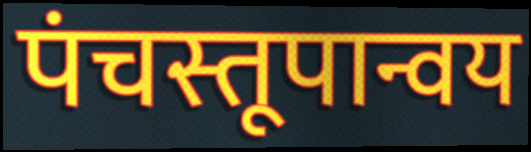
पंचस्तूपान्वय